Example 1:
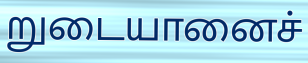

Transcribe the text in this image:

றுடையானைச்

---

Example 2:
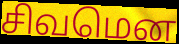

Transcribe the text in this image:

சிவமென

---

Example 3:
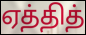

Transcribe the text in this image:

ஏத்தித்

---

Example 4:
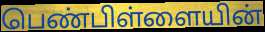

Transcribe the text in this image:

பெண்பிள்ளையின்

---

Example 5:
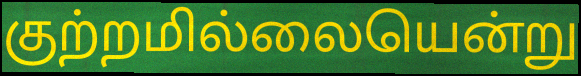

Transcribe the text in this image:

குற்றமில்லையென்று